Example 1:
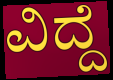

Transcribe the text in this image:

ವಿದ್ದೆ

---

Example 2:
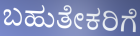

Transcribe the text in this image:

ಬಹುತೇಕರಿಗೆ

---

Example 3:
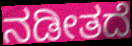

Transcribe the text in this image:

ನಡೀತದೆ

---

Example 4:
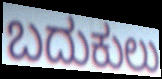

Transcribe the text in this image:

ಬದುಕುಲು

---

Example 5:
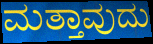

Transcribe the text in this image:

ಮತ್ತಾವುದು